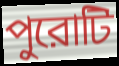
পুরোটি